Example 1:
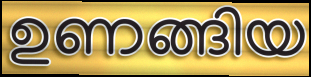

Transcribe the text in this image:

ഉണങ്ങിയ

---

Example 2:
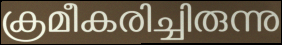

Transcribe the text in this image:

ക്രമീകരിച്ചിരുന്നു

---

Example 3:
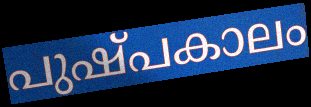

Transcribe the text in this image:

പുഷ്പകാലം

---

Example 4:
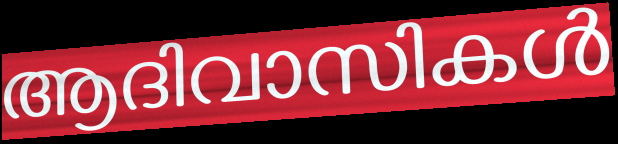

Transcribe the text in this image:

ആദിവാസികൾ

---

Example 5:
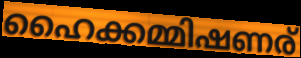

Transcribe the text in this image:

ഹൈക്കമ്മിഷണര്